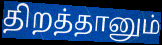
திறத்தானும்